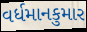
વર્ધમાનકુમાર